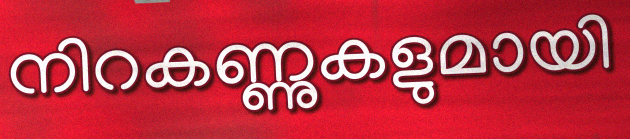
നിറകണ്ണുകളുമായി